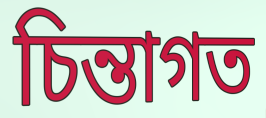
চিন্তাগত